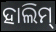
ହାଲିମ୍